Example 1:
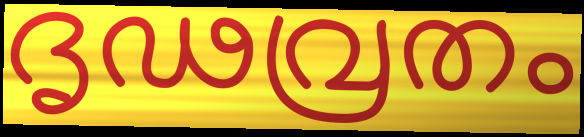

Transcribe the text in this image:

ദൃഢവ്രതം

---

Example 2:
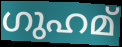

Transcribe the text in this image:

ഗുഹമ്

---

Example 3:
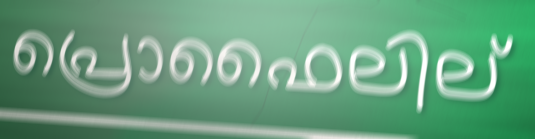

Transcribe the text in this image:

പ്രൊഫൈലില്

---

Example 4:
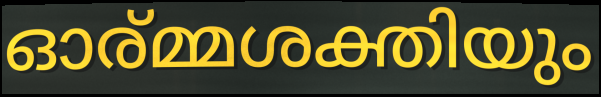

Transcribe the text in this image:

ഓര്മ്മശക്തിയും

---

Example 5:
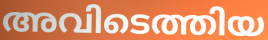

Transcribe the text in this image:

അവിടെത്തിയ